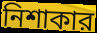
নিশাকার